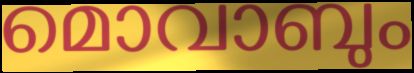
മൊവാബും